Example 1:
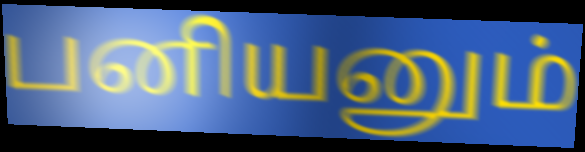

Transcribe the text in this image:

பனியனும்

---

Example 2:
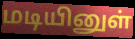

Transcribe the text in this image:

மடியினுள்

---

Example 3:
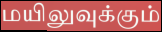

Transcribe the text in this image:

மயிலுவுக்கும்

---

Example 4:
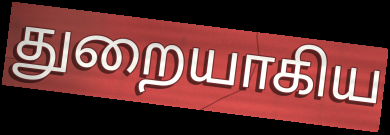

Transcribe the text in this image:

துறையாகிய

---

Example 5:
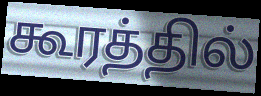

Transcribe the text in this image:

கூரத்தில்